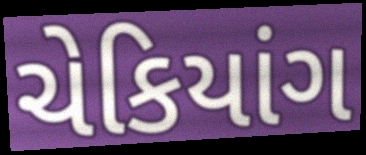
ચેકિયાંગ